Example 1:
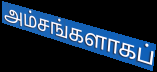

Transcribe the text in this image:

அம்சங்களாகப்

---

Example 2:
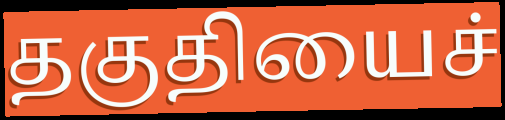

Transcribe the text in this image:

தகுதியைச்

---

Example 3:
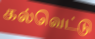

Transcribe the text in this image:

கல்வெட்டு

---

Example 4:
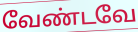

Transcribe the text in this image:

வேண்டவே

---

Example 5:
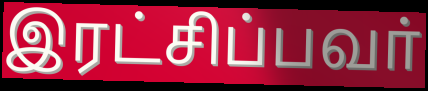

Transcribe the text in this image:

இரட்சிப்பவர்